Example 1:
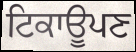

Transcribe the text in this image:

ਟਿਕਾਊਪਣ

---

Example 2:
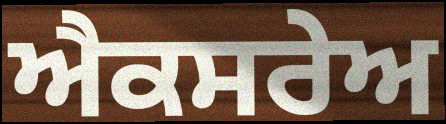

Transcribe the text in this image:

ਐਕਸਰੇਅ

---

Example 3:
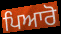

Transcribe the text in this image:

ਪਿਆਰੋ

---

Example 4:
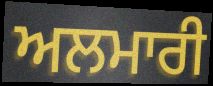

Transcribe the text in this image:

ਅਲਮਾਰੀ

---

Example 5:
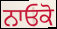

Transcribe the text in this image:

ਨਾਓਕੋ